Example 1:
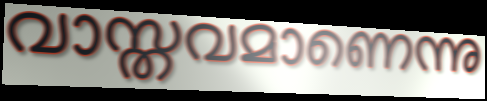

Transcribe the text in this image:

വാസ്തവമാണെന്നു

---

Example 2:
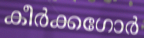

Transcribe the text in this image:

കീർക്കഗോർ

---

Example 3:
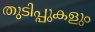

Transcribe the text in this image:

തുടിപ്പുകളും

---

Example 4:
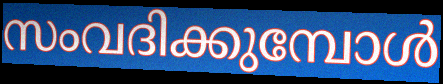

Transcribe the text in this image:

സംവദിക്കുമ്പോൾ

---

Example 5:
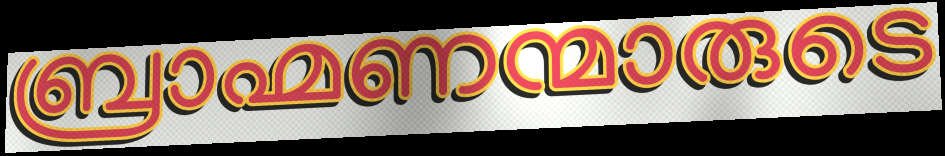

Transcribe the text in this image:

ബ്രാഹ്മണന്മാരുടെ